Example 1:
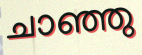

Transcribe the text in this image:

ചാഞ്ഞു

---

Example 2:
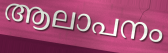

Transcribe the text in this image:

ആലാപനം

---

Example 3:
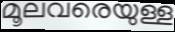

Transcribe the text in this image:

മൂലവരെയുള്ള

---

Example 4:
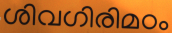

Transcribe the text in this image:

ശിവഗിരിമഠം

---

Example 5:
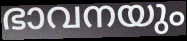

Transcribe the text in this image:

ഭാവനയും